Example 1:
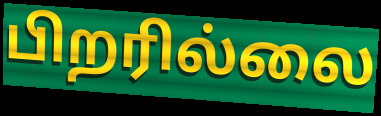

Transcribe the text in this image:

பிறரில்லை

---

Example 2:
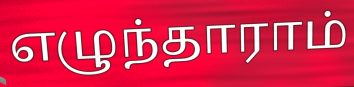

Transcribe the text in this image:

எழுந்தாராம்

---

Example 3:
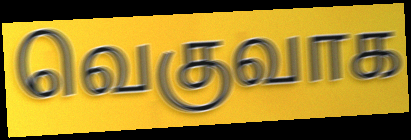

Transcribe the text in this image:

வெகுவாக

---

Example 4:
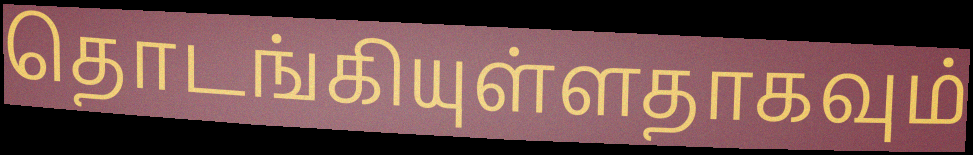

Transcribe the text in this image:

தொடங்கியுள்ளதாகவும்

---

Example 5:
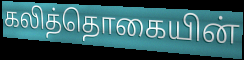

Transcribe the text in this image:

கலித்தொகையின்